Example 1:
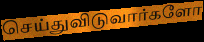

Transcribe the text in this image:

செய்துவிடுவார்களோ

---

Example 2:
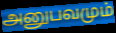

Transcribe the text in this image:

அனுபவமும்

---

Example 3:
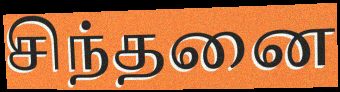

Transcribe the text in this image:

சிந்தனை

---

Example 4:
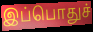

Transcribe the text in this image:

இப்பொதுச்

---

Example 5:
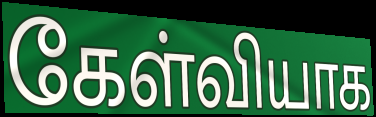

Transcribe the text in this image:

கேள்வியாக